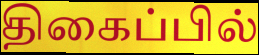
திகைப்பில்